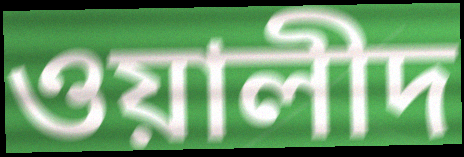
ওয়ালীদ